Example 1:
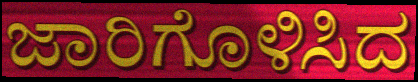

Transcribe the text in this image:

ಜಾರಿಗೊಳಿಸಿದ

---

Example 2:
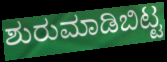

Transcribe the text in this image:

ಶುರುಮಾಡಿಬಿಟ್ಟ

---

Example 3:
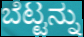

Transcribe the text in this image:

ಬೆಟ್ಟನ್ನು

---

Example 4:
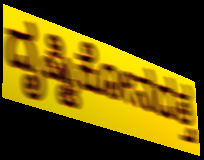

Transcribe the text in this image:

ದೃಷ್ಟಿಕೋನದತ್ತ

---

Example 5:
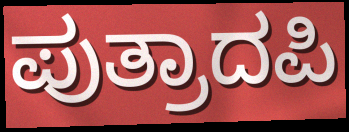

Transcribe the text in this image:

ಪುತ್ರಾದಪಿ